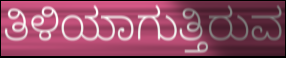
ತಿಳಿಯಾಗುತ್ತಿರುವ